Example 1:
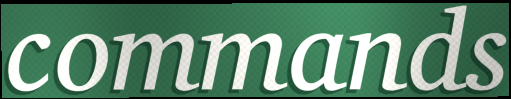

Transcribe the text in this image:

commands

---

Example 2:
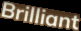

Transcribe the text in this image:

Brilliant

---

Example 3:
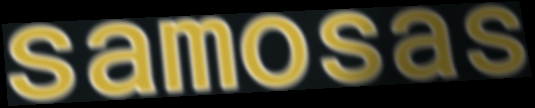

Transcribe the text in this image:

samosas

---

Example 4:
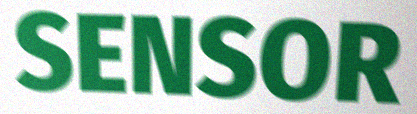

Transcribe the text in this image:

SENSOR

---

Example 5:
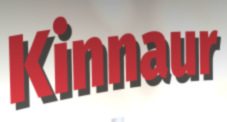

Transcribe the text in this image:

Kinnaur